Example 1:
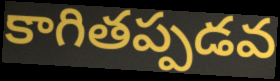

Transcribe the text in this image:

కాగితప్పడవ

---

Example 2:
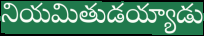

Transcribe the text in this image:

నియమితుడయ్యాడు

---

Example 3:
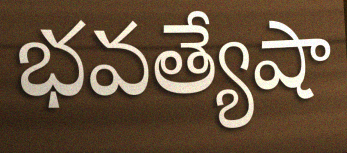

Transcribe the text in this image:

భవత్యేషా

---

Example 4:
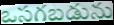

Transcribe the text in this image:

ఒసగబడును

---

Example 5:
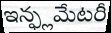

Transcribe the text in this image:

ఇన్ఫ్లమేటరీ